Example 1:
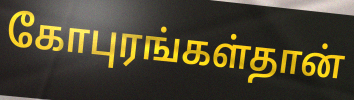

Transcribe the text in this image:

கோபுரங்கள்தான்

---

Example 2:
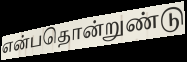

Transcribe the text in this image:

என்பதொன்றுண்டு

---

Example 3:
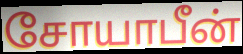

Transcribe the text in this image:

சோயாபீன்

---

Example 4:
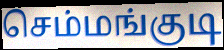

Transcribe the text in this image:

செம்மங்குடி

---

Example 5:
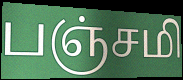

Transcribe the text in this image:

பஞ்சமி